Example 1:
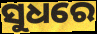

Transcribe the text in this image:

ସୁଧରେ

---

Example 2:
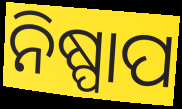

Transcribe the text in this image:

ନିଷ୍ପାପ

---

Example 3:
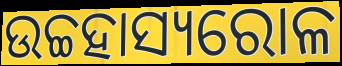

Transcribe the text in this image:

ଉଚ୍ଚହାସ୍ୟରୋଳ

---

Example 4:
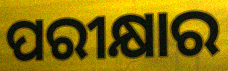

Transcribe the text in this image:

ପରୀକ୍ଷାର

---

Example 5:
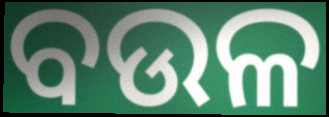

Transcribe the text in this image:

ବଉଳ